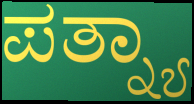
ಪತ್ನ್ಯಾ